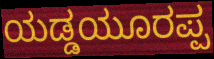
ಯಡ್ಡಯೂರಪ್ಪ